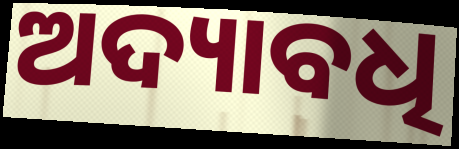
ଅଦ୍ୟାବଧି